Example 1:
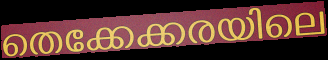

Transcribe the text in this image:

തെക്കേക്കരയിലെ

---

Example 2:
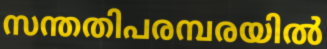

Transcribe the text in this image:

സന്തതിപരമ്പരയിൽ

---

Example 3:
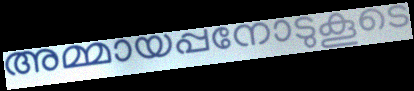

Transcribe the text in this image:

അമ്മായപ്പനോടുകൂടെ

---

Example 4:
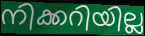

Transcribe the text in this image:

നിക്കറിയില്ല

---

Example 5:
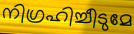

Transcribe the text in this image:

നിഗ്രഹിച്ചീടുമേ